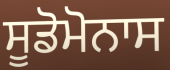
ਸੂਡੋਮੋਨਾਸ